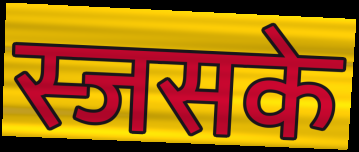
स्जसके